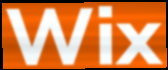
Wix